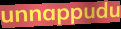
unnappudu